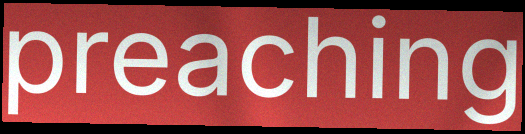
preaching